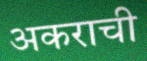
अकराची